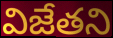
విజేతని